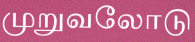
முறுவலோடு